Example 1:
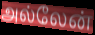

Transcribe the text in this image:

அல்லேன்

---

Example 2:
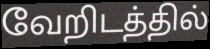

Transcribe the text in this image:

வேறிடத்தில்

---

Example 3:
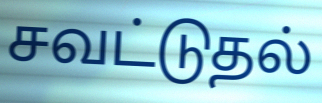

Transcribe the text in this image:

சவட்டுதல்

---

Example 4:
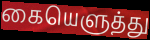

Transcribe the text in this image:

கையெளுத்து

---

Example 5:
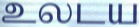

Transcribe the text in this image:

உலடய